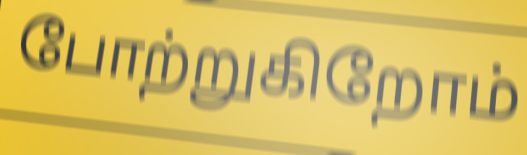
போற்றுகிறோம்